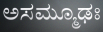
ಅಸಮ್ಮೂಢಃ